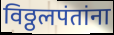
विठ्ठलपंतांना